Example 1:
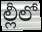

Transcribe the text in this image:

ల్లీలో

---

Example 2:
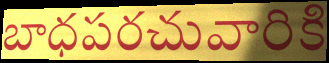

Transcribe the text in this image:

బాధపరచువారికి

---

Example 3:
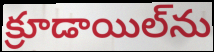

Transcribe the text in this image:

క్రూడాయిల్‌ను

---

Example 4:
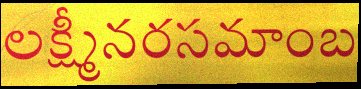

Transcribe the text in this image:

లక్ష్మీనరసమాంబ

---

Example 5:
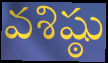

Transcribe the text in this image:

వశిష్ఠు